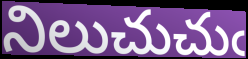
నిలుచుచుఁ